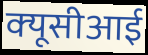
क्यूसीआई